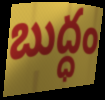
బుద్ధం